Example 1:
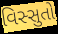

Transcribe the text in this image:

વિસ્સુતો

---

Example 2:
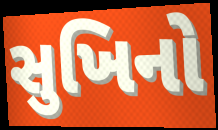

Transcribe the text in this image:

સુખિનો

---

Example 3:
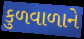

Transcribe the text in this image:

કુળવાળાને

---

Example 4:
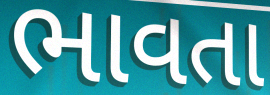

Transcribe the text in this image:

ભાવતા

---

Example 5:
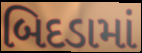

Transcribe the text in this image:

બિદડામાં